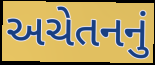
અચેતનનું